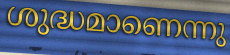
ശുദ്ധമാണെന്നു